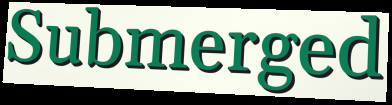
Submerged